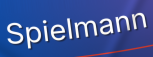
Spielmann